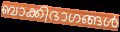
ബാക്കിഭാഗങ്ങൾ